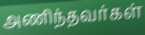
அணிந்தவர்கள்